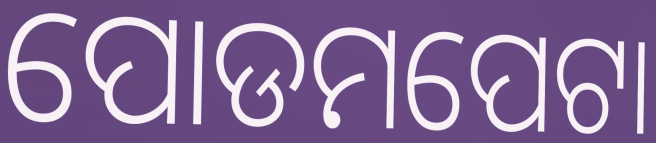
ପୋଡମପେଟା